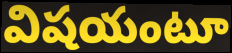
విషయంటూ